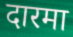
दारमा